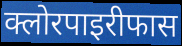
क्लोरपाइरीफास